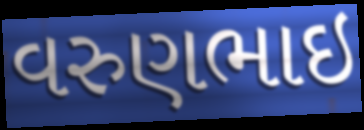
વરુણભાઇ